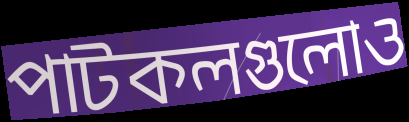
পাটকলগুলোও